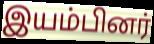
இயம்பினர்